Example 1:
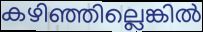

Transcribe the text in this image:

കഴിഞ്ഞില്ലെങ്കിൽ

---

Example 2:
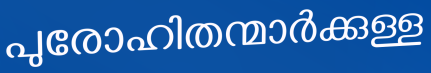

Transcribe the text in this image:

പുരോഹിതന്മാർക്കുള്ള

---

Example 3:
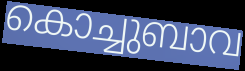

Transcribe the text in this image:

കൊച്ചുബാവ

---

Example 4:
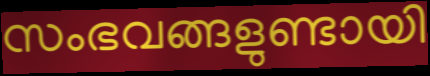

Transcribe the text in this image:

സംഭവങ്ങളുണ്ടായി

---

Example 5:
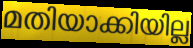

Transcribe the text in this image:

മതിയാക്കിയില്ല